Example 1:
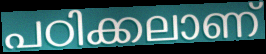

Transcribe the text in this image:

പഠിക്കലാണ്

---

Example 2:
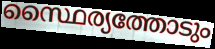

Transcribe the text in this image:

സ്ഥൈര്യത്തോടും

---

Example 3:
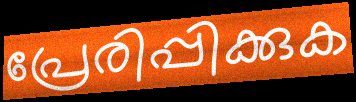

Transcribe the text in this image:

പ്രേരിപ്പിക്കുക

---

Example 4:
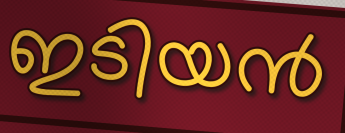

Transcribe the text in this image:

ഇടിയൻ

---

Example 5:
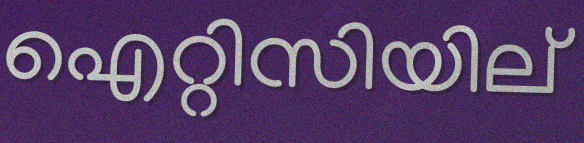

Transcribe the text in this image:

ഐറ്റിസിയില്